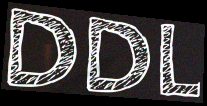
DDL